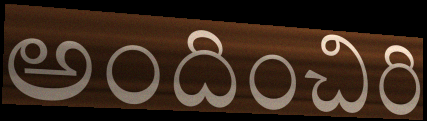
అందించిరి